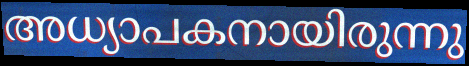
അധ്യാപകനായിരുന്നു